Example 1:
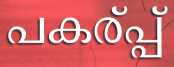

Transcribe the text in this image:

പകര്പ്പ്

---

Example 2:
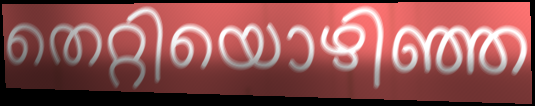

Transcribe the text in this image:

തെറ്റിയൊഴിഞ്ഞ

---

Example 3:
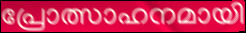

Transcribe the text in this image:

പ്രോത്സാഹനമായി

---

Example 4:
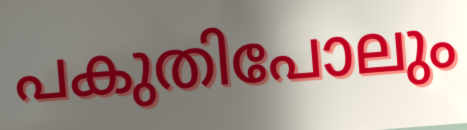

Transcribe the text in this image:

പകുതിപോലും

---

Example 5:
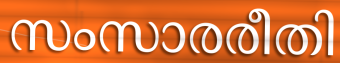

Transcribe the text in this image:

സംസാരരീതി